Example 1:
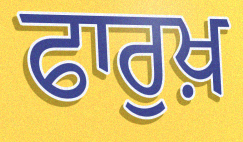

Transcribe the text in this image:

ਫਾਰੁਖ਼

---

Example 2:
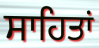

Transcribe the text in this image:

ਸਾਹਿਤਾਂ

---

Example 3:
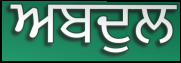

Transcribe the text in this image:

ਅਬਦੁਲ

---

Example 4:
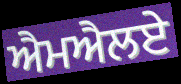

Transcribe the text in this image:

ਐਮਐਲਏ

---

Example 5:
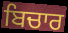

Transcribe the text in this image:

ਬਿਚਾਰ